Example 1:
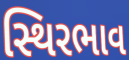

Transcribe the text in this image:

સ્થિરભાવ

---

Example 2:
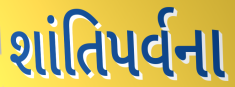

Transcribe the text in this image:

શાંતિપર્વના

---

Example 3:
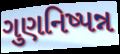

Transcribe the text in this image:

ગુણનિષ્પન્ન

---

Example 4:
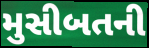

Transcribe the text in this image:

મુસીબતની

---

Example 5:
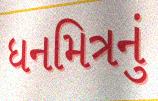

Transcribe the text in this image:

ધનમિત્રનું